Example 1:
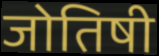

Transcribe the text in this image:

जोतिषी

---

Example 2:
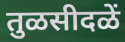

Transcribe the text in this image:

तुळसीदळें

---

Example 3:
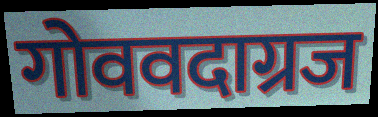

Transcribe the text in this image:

गोववदाग्रज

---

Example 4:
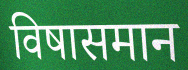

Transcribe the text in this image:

विषासमान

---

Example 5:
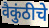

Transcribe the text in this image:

वैकुंठीचे